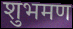
शुभमण